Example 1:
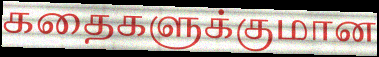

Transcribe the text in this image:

கதைகளுக்குமான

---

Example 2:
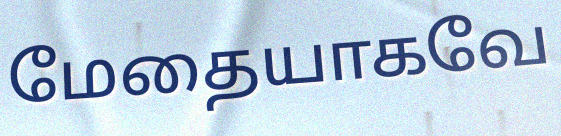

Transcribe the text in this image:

மேதையாகவே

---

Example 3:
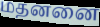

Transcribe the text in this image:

மதனனை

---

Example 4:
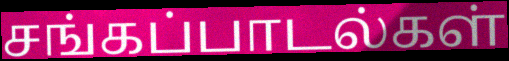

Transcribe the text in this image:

சங்கப்பாடல்கள்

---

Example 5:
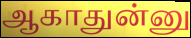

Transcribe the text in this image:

ஆகாதுன்னு